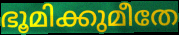
ഭൂമിക്കുമീതേ